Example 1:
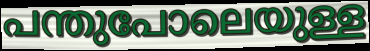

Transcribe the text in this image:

പന്തുപോലെയുള്ള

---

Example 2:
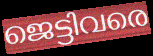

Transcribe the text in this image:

ജെട്ടിവരെ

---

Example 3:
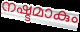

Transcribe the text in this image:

നഷ്ടമാകും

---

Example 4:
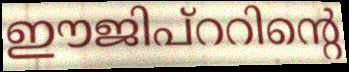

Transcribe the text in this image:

ഈജിപ്ററിന്റെ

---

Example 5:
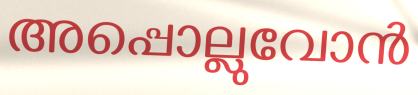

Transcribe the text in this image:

അപ്പൊല്ലുവോൻ